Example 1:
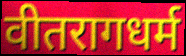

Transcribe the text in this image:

वीतरागधर्म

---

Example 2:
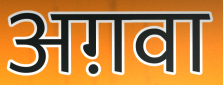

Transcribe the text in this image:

अग़वा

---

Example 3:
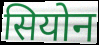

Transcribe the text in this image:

सियोन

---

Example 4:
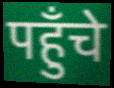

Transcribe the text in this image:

पहुँचे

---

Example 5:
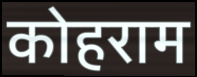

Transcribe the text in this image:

कोहराम